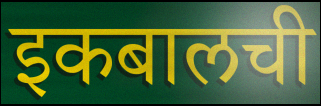
इकबालची